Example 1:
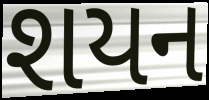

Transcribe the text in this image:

શયન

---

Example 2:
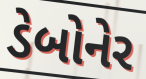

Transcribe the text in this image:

ડેબોનેર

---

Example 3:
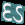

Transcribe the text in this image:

દડ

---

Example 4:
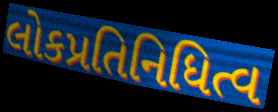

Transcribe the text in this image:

લોકપ્રતિનિધિત્વ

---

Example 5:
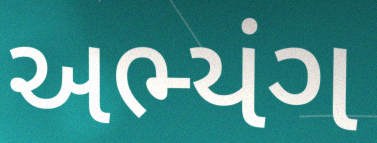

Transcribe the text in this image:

અભ્યંગ